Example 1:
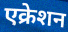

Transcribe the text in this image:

एक्रेशन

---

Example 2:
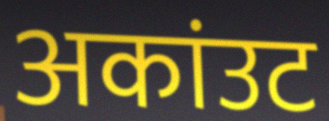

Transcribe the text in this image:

अकांउट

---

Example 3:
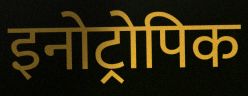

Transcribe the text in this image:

इनोट्रोपिक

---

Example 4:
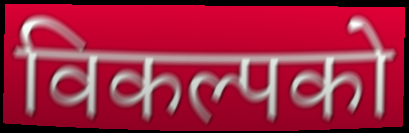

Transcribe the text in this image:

विकल्पको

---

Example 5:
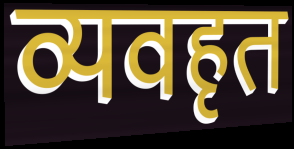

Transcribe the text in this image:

व्यवहृत